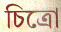
চিত্রো